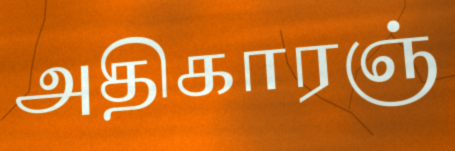
அதிகாரஞ்